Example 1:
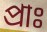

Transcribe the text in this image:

প্রাঃ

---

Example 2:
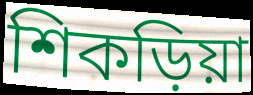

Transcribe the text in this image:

শিকড়িয়া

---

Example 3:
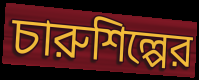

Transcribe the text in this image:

চারুশিল্পের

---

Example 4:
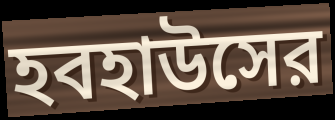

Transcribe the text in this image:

হবহাউসের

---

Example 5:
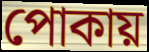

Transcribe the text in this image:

পোকায়